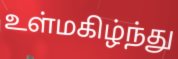
உள்மகிழ்ந்து